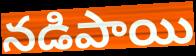
నడిపాయి